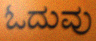
ಓದುವು